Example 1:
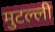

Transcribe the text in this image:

मुटल्ली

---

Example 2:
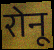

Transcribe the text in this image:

रोनू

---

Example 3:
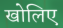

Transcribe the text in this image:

खोलिए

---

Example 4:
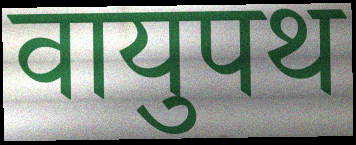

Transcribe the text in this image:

वायुपथ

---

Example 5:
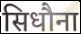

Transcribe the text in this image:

सिधौना